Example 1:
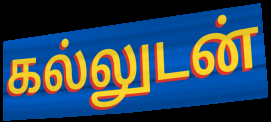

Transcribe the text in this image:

கல்லுடன்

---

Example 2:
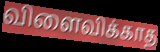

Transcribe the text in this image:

விளைவிக்காத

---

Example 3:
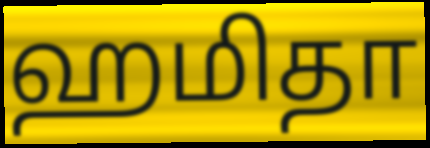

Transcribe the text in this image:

ஹமிதா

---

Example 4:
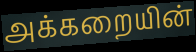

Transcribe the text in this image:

அக்கறையின்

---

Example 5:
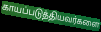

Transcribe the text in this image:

காயப்படுத்தியவர்களை